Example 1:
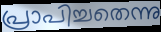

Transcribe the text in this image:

പ്രാപിച്ചതെന്നു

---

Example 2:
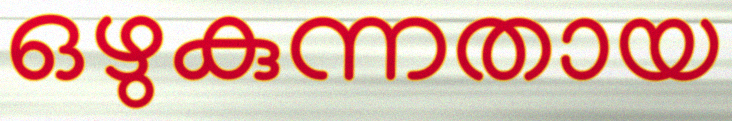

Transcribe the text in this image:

ഒഴുകുന്നതായ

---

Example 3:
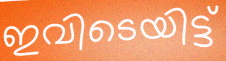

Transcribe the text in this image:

ഇവിടെയിട്ട്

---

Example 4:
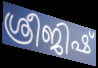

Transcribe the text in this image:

ശ്രീജിഷ്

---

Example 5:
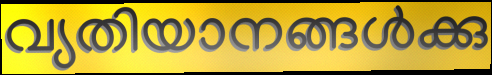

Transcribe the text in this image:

വ്യതിയാനങ്ങൾക്കു